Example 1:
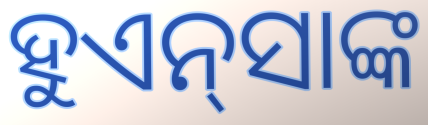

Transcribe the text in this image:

ହୁଏନ୍‍ସାଙ୍କ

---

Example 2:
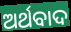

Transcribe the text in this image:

ଅର୍ଥବାଦ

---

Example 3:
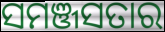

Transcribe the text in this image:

ସମଞ୍ଜସତାର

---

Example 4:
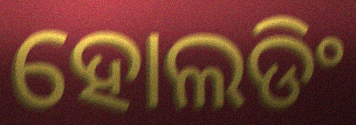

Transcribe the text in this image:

ହୋଲଡିଂ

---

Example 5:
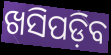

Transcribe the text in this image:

ଖସିପଡ଼ିବ